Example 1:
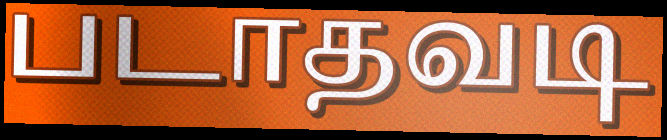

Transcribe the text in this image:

படாதவடி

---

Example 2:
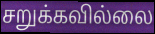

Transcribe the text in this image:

சறுக்கவில்லை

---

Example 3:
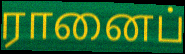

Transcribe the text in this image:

ரானைப்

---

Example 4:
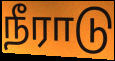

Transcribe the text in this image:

நீராடு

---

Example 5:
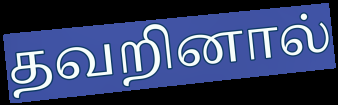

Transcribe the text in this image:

தவறினால்